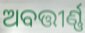
ଅବତ୍ତୀର୍ଣ୍ଣ